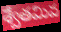
శ్వేతమివ